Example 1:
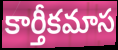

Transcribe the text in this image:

కార్తీకమాస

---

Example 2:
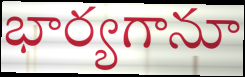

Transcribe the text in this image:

భార్యగానూ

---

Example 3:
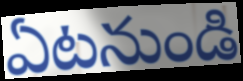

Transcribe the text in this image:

ఏటనుండి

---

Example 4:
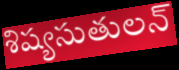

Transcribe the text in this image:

శిష్యసుతులన్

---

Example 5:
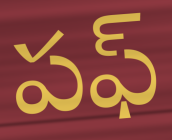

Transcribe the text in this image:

పఫ్